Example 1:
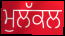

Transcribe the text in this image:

ਮੁਲੱਕਲ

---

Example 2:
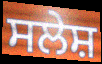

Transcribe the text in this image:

ਸਲੇਸ਼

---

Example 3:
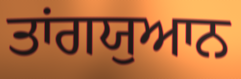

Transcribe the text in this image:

ਤਾਂਗਯੁਆਨ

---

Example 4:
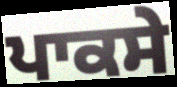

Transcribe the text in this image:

ਪਾਕਸੇ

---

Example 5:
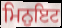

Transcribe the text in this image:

ਮਿਨੁਇਟ